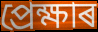
প্ৰেক্ষাৰ